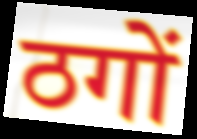
ठगों